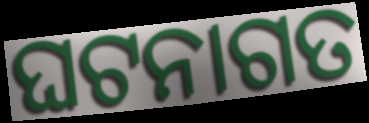
ଘଟନାଗତ